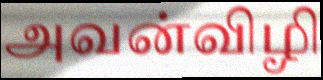
அவன்விழி